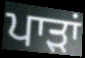
ਪਾੜਾਂ